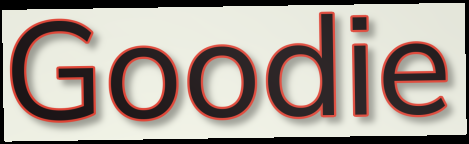
Goodie